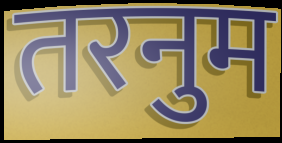
तरनुम